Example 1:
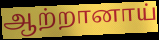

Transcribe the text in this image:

ஆற்றானாய்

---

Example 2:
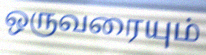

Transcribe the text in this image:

ஒருவரையும்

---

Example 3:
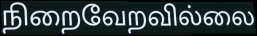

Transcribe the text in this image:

நிறைவேறவில்லை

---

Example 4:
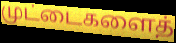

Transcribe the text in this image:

முட்டைகளைத்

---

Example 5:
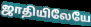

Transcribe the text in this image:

ஜாதியிலேயே